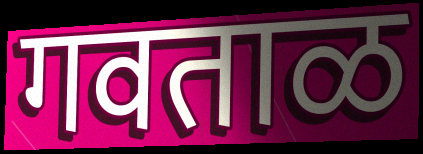
गवताळ